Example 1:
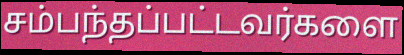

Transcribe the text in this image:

சம்பந்தப்பட்டவர்களை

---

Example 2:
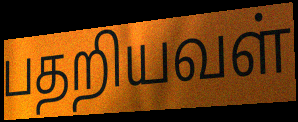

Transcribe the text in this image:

பதறியவள்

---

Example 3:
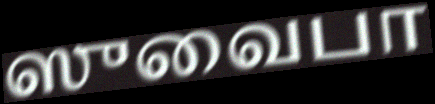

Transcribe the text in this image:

ஸுவைபா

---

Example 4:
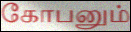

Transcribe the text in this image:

கோபனும்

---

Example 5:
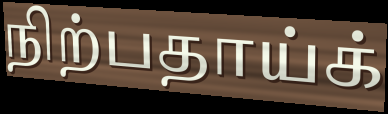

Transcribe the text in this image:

நிற்பதாய்க்